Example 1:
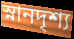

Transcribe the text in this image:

স্নানদৃশ্য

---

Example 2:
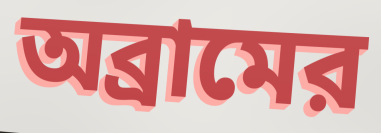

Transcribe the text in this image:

অব্রামের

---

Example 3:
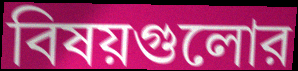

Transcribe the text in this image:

বিষয়গুলোর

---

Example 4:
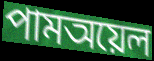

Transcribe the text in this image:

পামঅয়েল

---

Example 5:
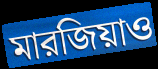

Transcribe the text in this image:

মারজিয়াও